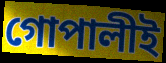
গোপালীই